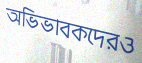
অভিভাবকদেরও